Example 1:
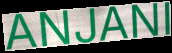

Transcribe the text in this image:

ANJANI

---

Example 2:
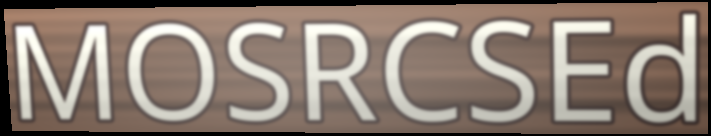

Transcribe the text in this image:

MOSRCSEd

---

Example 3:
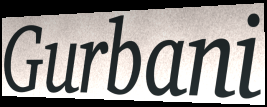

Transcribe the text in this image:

Gurbani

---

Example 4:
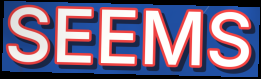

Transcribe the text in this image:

SEEMS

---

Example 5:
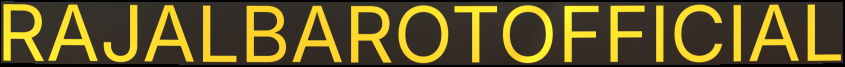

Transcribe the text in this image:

RAJALBAROTOFFICIAL